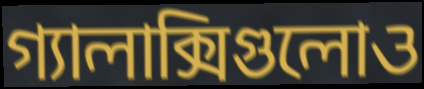
গ্যালাক্সিগুলোও